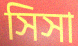
সিসা